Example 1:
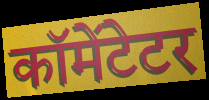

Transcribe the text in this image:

कॉमेंटेटर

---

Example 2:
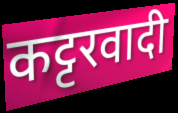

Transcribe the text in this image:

कट्टरवादी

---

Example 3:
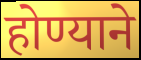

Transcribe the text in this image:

होण्याने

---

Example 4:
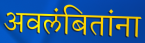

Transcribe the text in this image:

अवलंबितांना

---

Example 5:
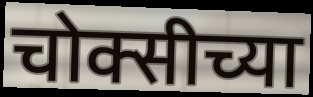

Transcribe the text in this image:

चोक्सीच्या